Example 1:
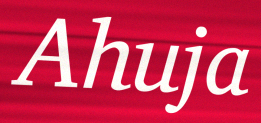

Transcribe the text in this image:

Ahuja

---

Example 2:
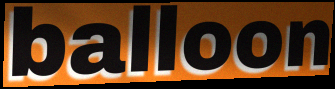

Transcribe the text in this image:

balloon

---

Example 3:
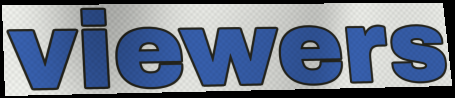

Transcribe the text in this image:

viewers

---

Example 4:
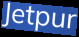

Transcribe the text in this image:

Jetpur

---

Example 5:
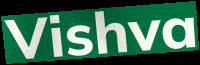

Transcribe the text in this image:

Vishva